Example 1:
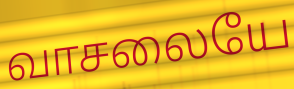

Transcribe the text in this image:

வாசலையே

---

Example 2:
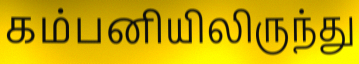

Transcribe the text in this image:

கம்பனியிலிருந்து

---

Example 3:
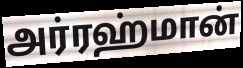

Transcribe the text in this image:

அர்ரஹ்மான்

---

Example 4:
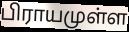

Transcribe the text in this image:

பிராயமுள்ள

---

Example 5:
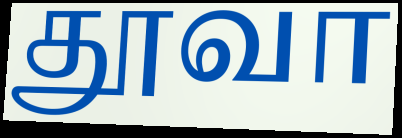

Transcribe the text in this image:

தூவா